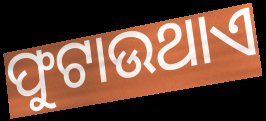
ଫୁଟାଉଥାଏ